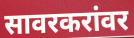
सावरकरांवर